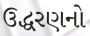
ઉદ્ધરણનો